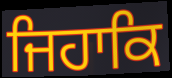
ਜਿਹਾਕਿ